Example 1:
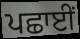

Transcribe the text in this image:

ਪਛਾਈਂ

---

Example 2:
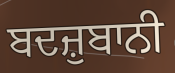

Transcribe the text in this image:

ਬਦਜ਼ੁਬਾਨੀ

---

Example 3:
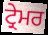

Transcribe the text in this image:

ਟ੍ਰੇਮਰ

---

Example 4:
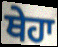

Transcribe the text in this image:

ਥੇਹਾ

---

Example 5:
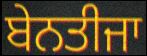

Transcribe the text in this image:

ਬੇਨਤੀਜਾ